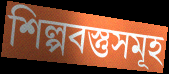
শিল্পবস্তুসমূহ